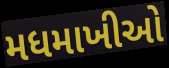
મધમાખીઓ